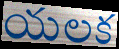
యలక